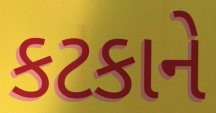
કટકાને